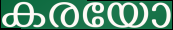
കരയോ